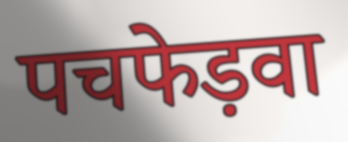
पचफेड़वा